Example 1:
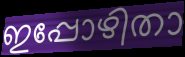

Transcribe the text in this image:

ഇപ്പോഴിതാ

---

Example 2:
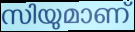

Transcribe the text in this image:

സിയുമാണ്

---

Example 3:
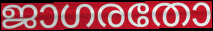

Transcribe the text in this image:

ജാഗരതോ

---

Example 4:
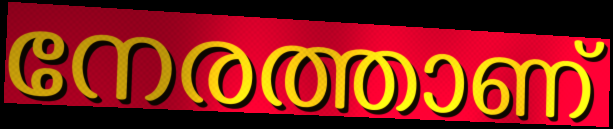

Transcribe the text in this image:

നേരത്താണ്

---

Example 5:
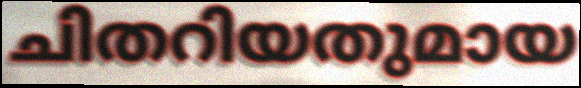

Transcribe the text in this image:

ചിതറിയതുമായ